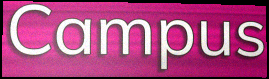
Campus